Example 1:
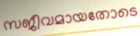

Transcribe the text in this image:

സജീവമായതോടെ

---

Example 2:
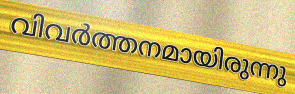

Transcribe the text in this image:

വിവർത്തനമായിരുന്നു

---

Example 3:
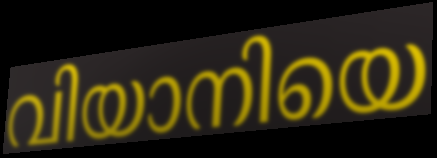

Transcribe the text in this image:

വിയാനിയെ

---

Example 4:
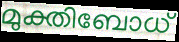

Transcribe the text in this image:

മുക്തിബോധ്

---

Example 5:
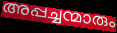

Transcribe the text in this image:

അപ്പച്ചന്മാരും